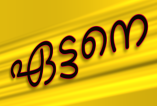
ഏട്ടനെ